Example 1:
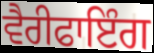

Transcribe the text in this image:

ਵੈਰੀਫਾਇੰਗ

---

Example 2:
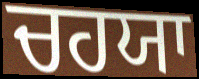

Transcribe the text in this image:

ਚਹਯਾ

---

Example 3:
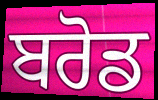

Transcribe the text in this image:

ਬਰੋਡ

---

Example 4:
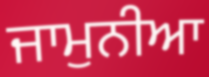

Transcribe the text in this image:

ਜਾਮੁਨੀਆ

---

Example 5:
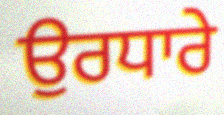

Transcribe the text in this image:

ਉਰਧਾਰੇ